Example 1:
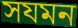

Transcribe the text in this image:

সযমন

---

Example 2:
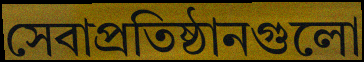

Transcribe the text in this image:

সেবাপ্রতিষ্ঠানগুলো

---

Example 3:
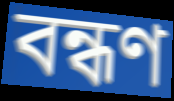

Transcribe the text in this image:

বন্ধণ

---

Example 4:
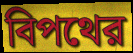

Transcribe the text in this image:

বিপথের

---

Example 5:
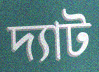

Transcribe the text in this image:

দ্যাট